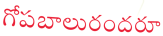
గోపబాలురందరూ